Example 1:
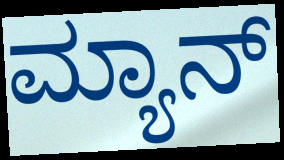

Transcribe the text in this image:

ಮ್ಯಾನ್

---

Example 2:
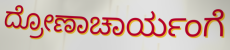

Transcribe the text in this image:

ದ್ರೋಣಾಚಾರ್ಯಂಗೆ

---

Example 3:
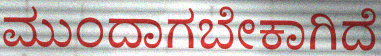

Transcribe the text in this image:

ಮುಂದಾಗಬೇಕಾಗಿದೆ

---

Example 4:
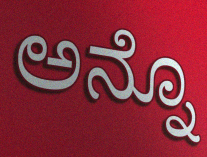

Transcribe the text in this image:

ಅನ್ನೊ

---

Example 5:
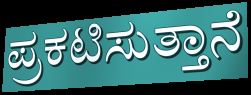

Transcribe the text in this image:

ಪ್ರಕಟಿಸುತ್ತಾನೆ